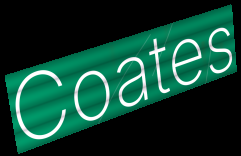
Coates